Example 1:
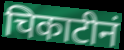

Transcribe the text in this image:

चिकाटीनं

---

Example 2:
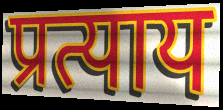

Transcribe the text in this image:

प्रत्याय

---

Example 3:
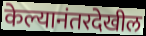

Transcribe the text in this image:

केल्यानंतरदेखील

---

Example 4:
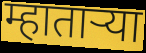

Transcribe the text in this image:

म्हातार्‍या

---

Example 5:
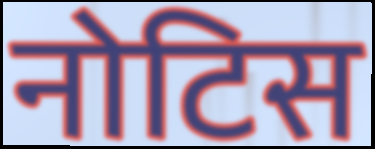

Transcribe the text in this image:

नोटिस